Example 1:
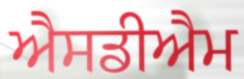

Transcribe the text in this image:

ਐਸਡੀਐਮ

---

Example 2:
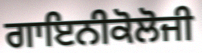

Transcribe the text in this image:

ਗਾਇਨੀਕੋਲੋਜੀ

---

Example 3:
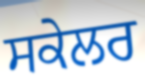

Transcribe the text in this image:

ਸਕੇਲਰ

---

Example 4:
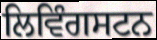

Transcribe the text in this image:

ਲਿਵਿੰਗਸਟਨ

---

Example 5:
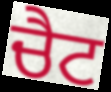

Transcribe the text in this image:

ਚੈਟ